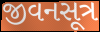
જીવનસૂત્ર